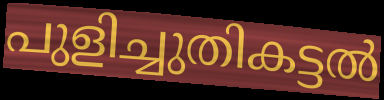
പുളിച്ചുതികട്ടൽ